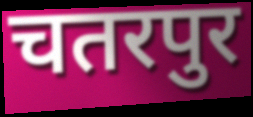
चतरपुर